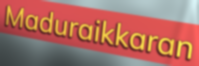
Maduraikkaran